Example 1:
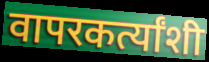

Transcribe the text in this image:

वापरकर्त्यांशी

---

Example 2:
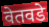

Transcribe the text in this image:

वेतवडे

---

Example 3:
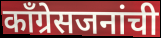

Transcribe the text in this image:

काँग्रेसजनांची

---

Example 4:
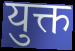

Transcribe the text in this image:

युक्त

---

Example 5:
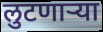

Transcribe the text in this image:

लुटणाऱ्या